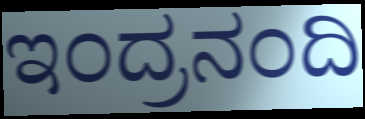
ಇಂದ್ರನಂದಿ